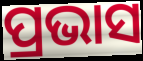
ପ୍ରଭାସ